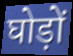
घोड़ों